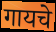
गायचे